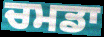
ਚਮਡਾ